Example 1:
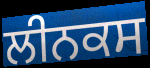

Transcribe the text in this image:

ਲੀਨਕਸ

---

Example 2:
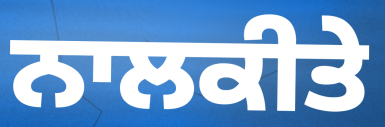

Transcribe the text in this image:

ਨਾਲਕੀਤੇ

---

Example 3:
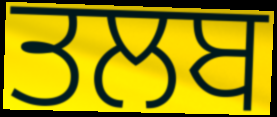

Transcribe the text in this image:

ਤਲਬ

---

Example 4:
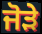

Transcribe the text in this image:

ਜੋੜੇ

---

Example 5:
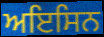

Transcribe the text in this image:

ਅਇਸਿਨ